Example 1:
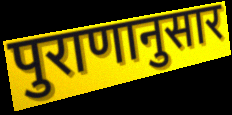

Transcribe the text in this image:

पुराणानुसार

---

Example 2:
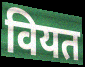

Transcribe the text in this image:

वियत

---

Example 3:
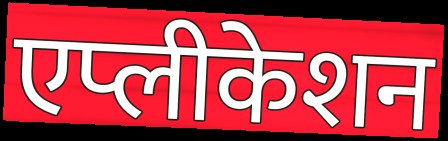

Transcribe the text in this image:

एप्‍लीकेशन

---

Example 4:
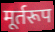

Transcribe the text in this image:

मूर्तरूप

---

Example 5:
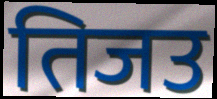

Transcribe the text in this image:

तिजउ